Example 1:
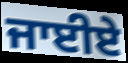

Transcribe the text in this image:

ਜਾਈਏ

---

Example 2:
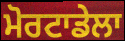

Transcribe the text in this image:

ਮੋਰਟਾਡੇਲਾ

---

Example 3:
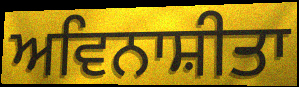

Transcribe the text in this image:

ਅਵਿਨਾਸ਼ੀਤਾ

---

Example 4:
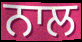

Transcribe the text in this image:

ਨਾਲ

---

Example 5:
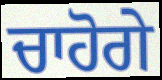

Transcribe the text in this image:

ਚਾਹੋਗੇ